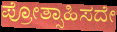
ಪ್ರೋತ್ಸಾಹಿಸದೇ